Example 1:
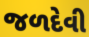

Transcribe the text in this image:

જળદેવી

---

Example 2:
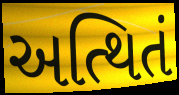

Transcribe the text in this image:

અત્થિતં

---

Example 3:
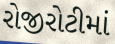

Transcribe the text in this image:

રોજીરોટીમાં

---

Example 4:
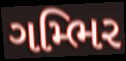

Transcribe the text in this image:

ગમ્ભિર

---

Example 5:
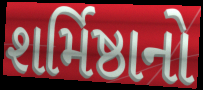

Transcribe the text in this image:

શર્મિષ્ઠાનો